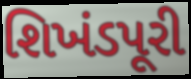
શિખંડપૂરી